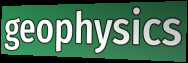
geophysics